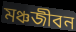
মঞ্চজীবন